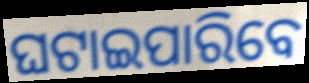
ଘଟାଇପାରିବେ